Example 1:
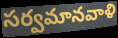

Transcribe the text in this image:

సర్వమానవాళి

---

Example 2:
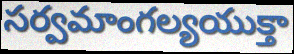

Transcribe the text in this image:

సర్వమాంగల్యయుక్తా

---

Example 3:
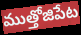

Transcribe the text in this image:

ముత్తోజిపేట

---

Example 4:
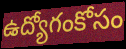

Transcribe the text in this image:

ఉద్యోగంకోసం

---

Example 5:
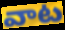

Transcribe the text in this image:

వాట